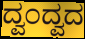
ದ್ವಂದ್ವದ